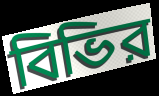
বিভির